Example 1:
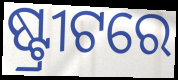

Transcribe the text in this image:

ଷ୍ଟ୍ରୀଟରେ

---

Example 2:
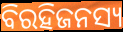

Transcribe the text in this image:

ବିରହିଜନସ୍ୟ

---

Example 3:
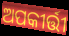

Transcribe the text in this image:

ଅପକୀର୍ତ୍ତୀ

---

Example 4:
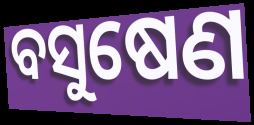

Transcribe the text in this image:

ବସୁଷେଣ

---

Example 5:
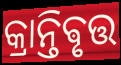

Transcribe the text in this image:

କ୍ରାନ୍ତିଵୃତ୍ତ